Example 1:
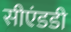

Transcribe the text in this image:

सीएंडडी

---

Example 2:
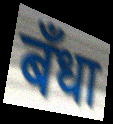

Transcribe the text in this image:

बँधा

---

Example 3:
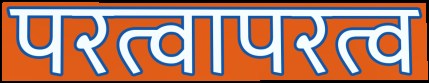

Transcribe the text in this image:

परत्वापरत्व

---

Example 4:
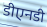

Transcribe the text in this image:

डीएनडी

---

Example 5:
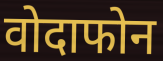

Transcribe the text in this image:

वोदाफोन